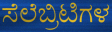
ಸೆಲೆಬ್ರಿಟಿಗಳ